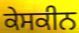
ਕੇਸਕੀਨ